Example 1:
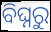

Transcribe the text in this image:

ବିଘ୍ନରୁ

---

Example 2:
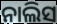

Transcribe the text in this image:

ନାଲିସ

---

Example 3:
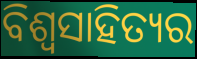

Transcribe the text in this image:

ବିଶ୍ୱସାହିତ୍ୟର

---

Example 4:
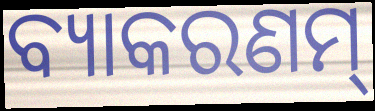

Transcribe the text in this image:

ବ୍ୟାକରଣମ୍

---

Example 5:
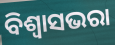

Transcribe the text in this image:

ବିଶ୍ୱାସଭରା